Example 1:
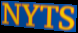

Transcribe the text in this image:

NYTS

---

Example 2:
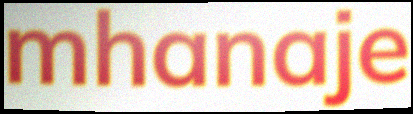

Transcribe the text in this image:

mhanaje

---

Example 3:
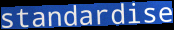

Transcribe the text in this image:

standardise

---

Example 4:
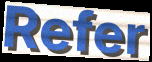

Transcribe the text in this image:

Refer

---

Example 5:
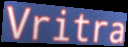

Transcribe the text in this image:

Vritra